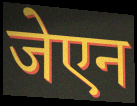
जेएन